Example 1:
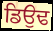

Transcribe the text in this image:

ਡਿਉਢ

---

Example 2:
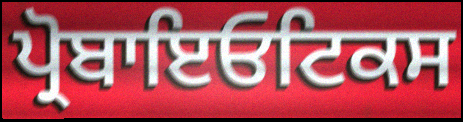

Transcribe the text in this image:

ਪ੍ਰੋਬਾਇਓਟਿਕਸ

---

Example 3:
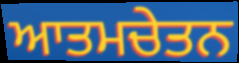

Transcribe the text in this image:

ਆਤਮਚੇਤਨ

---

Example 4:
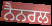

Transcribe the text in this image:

ਨੈਨਰਲ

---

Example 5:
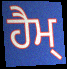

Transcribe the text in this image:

ਹੈਮ੍